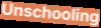
Unschooling